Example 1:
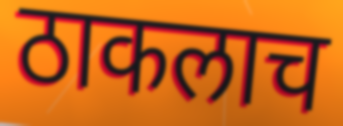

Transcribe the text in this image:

ठाकलाच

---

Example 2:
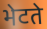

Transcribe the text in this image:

भेटते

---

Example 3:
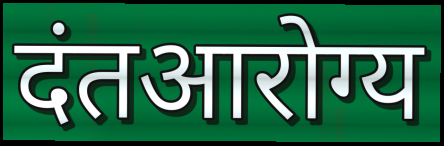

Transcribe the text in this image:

दंतआरोग्य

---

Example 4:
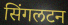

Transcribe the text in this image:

सिंगलटन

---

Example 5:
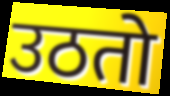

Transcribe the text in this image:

उठतो